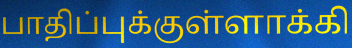
பாதிப்புக்குள்ளாக்கி